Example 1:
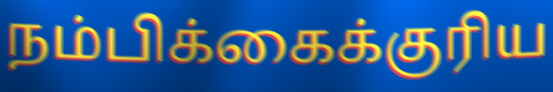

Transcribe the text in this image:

நம்பிக்கைக்குரிய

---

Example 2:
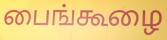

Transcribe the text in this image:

பைங்கூழை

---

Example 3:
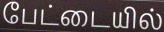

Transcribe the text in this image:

பேட்டையில்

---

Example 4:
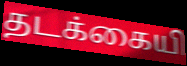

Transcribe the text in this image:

தடக்கையி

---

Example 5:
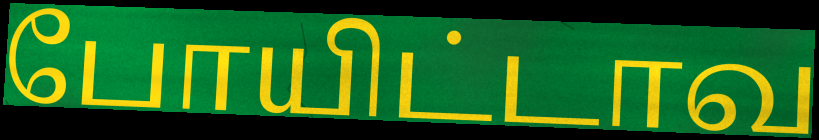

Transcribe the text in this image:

போயிட்டாவ